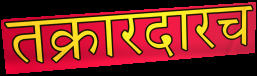
तक्रारदारच